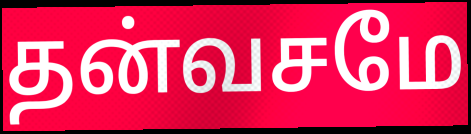
தன்வசமே